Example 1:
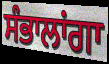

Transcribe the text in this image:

ਸੰਭਾਲਾਂਗਾ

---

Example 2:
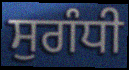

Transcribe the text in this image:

ਸੁਗੰਧੀ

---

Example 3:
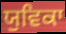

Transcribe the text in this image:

ਯੁਵਿਕਾ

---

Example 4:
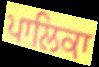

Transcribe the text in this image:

ਪਾਲਿਕਾ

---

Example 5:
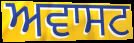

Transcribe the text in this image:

ਅਵਾਸਟ